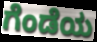
ಗೆಂಡೆಯ